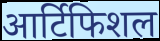
आर्टिफिशल